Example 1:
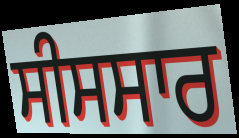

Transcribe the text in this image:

ਸੀਸਸਾਰ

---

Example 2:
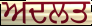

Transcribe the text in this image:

ਅਦਲਤ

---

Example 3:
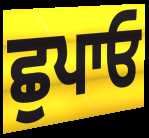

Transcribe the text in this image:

ਛੁਪਾਓ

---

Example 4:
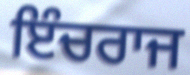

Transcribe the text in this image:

ਇੰਚਰਾਜ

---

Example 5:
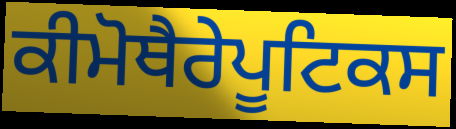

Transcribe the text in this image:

ਕੀਮੋਥੈਰੇਪੂਟਿਕਸ